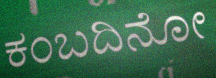
ಕಂಬದಿನೋ